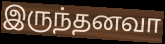
இருந்தனவா